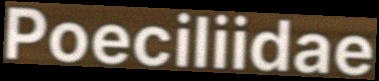
Poeciliidae